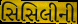
સિસિલીની